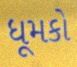
ધૂમકો